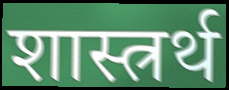
शास्त्रर्थ